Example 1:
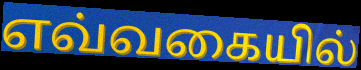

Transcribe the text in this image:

எவ்வகையில்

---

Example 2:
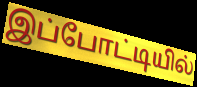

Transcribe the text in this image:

இப்போட்டியில்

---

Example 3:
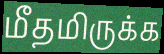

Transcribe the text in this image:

மீதமிருக்க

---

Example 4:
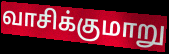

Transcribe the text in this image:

வாசிக்குமாறு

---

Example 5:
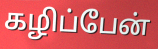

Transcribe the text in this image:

கழிப்பேன்